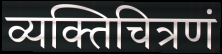
व्यक्तिचित्रणं